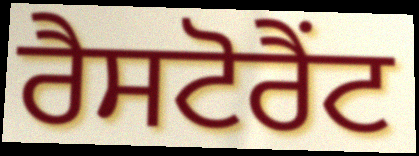
ਰੈਸਟੋਰੈਂਟ